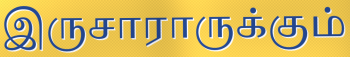
இருசாராருக்கும்